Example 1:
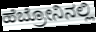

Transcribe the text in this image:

ಹೆಬ್ರೋನಿನಲ್ಲಿ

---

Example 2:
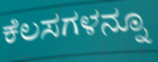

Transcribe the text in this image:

ಕೆಲಸಗಳನ್ನೂ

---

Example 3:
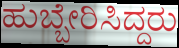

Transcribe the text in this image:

ಹುಬ್ಬೇರಿಸಿದ್ದರು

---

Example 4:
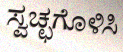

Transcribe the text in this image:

ಸ್ವಚ್ಛಗೊಳಿಸಿ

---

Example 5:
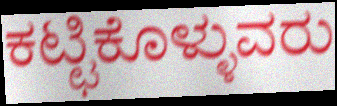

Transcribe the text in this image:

ಕಟ್ಟಿಕೊಳ್ಳುವರು